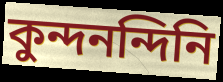
কুন্দনন্দিনি